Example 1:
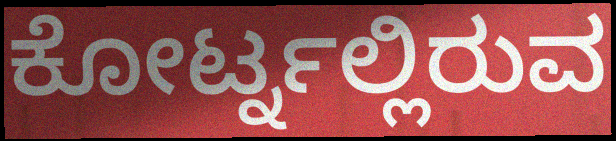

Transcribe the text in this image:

ಕೋರ್ಟ್ನಲ್ಲಿರುವ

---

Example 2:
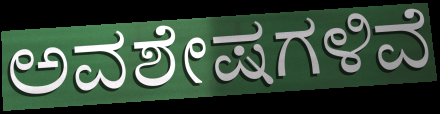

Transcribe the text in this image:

ಅವಶೇಷಗಳಿವೆ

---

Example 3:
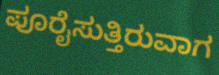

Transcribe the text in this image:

ಪೂರೈಸುತ್ತಿರುವಾಗ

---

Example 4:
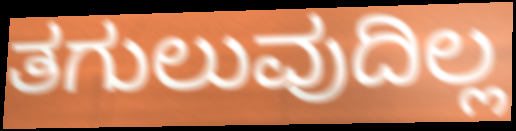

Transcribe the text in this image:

ತಗುಲುವುದಿಲ್ಲ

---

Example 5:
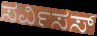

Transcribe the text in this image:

ಸರ್ವಿಸಸ್